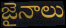
జైనాలు